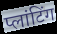
प्लांटिंग